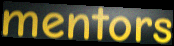
mentors